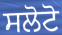
ਸਲੋਟੋ